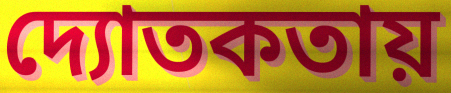
দ্যোতকতায়